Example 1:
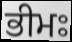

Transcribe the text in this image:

ਭੀਮਃ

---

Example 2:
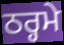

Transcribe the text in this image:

ਠਰ੍ਹਮੇ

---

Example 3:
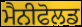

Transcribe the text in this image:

ਮੈਨੀਫੋਲਡ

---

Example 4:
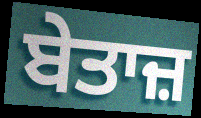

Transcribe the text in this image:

ਬੇਤਾਜ਼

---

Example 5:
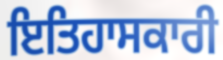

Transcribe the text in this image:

ਇਤਿਹਾਸਕਾਰੀ